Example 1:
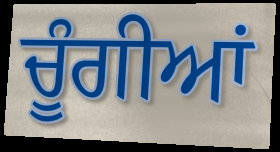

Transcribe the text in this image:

ਚੂੰਗੀਆਂ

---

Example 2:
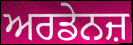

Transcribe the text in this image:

ਅਰਡੇਨਜ਼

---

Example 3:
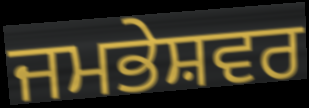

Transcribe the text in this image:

ਜਮਭੇਸ਼ਵਰ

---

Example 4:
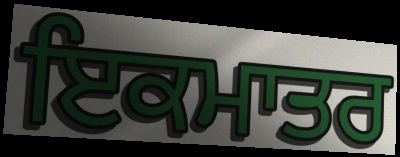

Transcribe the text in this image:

ਇਕਮਾਤਰ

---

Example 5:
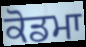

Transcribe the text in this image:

ਕੋਡਮਾ